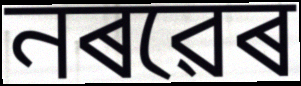
নৰৱেৰ